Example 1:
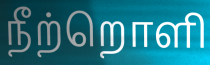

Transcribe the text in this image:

நீற்றொளி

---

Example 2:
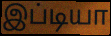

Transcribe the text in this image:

இப்டியா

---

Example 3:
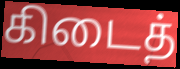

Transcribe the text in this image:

கிடைத்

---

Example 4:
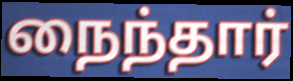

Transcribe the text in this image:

நைந்தார்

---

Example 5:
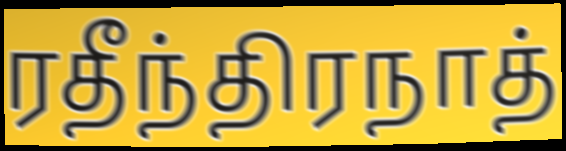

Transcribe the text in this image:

ரதீந்திரநாத்